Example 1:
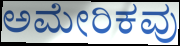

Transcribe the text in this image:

ಅಮೇರಿಕವು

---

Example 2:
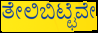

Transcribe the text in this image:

ತೇಲಿಬಿಟ್ಟೆವೇ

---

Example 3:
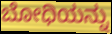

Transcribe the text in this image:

ಬೋಧಿಯನ್ನು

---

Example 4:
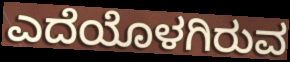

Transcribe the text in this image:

ಎದೆಯೊಳಗಿರುವ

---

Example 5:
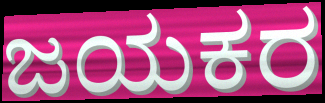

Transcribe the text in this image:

ಜಯಕರ